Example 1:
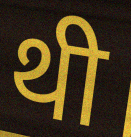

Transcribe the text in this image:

थी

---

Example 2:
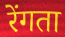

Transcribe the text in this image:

रेंगता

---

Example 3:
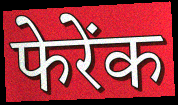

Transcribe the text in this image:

फेरेंक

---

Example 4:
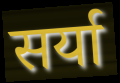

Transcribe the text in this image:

सर्या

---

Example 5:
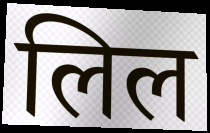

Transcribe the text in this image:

लिल